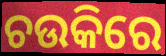
ଚଉକିରେ